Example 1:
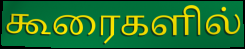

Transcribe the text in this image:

கூரைகளில்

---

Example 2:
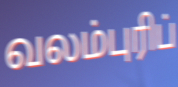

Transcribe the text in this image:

வலம்புரிப்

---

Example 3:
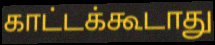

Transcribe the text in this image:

காட்டக்கூடாது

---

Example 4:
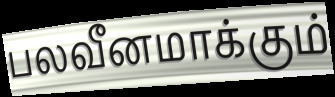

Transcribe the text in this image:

பலவீனமாக்கும்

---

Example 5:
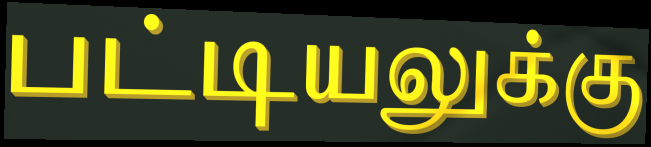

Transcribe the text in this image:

பட்டியலுக்கு